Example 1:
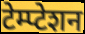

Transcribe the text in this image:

टेम्प्टेशन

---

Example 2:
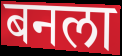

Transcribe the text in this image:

बनला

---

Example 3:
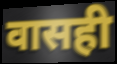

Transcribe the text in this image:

वासही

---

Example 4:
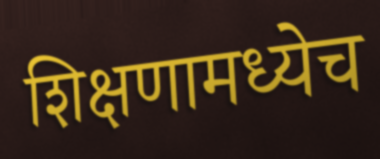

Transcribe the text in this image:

शिक्षणामध्येच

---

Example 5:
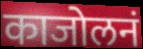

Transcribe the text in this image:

काजोलनं